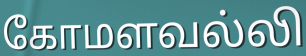
கோமளவல்லி